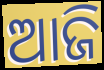
ଆଜି